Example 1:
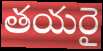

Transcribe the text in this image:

తయరై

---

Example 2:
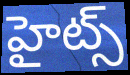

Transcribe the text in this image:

హైట్స్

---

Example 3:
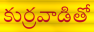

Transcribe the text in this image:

కుర్రవాడితో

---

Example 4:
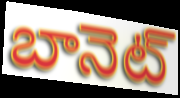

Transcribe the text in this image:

బానెట్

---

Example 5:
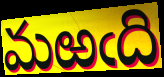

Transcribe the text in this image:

మఱఁది